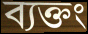
ব্যক্তং